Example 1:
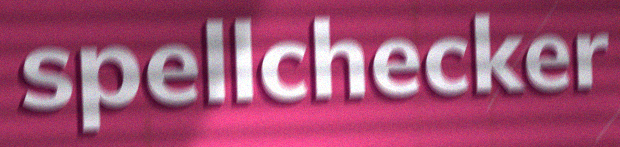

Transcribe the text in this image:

spellchecker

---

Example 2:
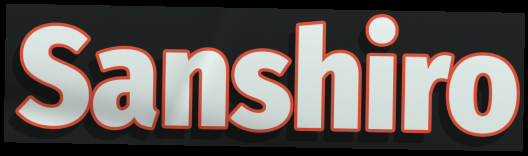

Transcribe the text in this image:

Sanshiro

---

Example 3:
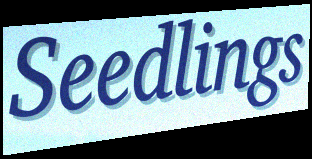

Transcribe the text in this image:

Seedlings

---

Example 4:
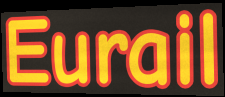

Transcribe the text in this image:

Eurail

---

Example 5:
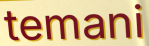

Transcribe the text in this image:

temani